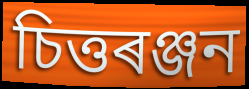
চিত্তৰঞ্জন